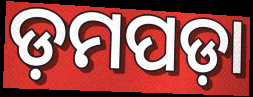
ଡ଼ମପଡ଼ା